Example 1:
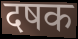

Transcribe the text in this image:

दषक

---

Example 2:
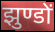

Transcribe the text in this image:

झुण्डों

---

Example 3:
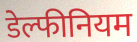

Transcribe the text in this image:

डेल्फीनियम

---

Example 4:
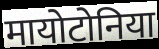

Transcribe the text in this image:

मायोटोनिया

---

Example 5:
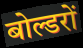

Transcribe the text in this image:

बोल्डरों